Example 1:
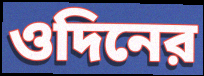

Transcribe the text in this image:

ওদিনের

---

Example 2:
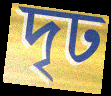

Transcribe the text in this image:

দৃঢ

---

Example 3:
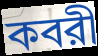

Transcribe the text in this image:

কবরী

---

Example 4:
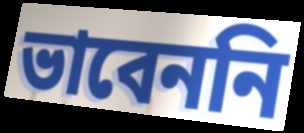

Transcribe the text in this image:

ভাবেননি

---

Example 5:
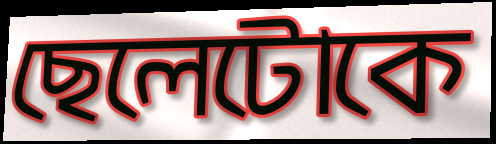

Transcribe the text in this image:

ছেলেটোকে